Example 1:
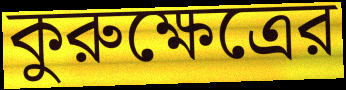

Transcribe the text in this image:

কুরুক্ষেত্রের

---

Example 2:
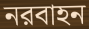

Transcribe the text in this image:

নরবাহন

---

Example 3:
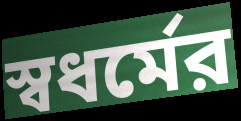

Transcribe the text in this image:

স্বধর্মের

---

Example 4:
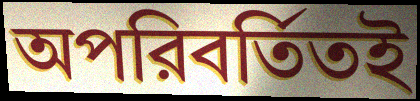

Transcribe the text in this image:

অপরিবর্তিতই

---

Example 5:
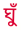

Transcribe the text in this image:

ঘুঁ